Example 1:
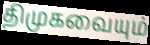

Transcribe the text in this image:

திமுகவையும்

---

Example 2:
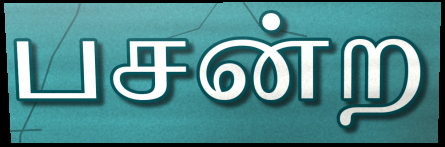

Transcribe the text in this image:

பசன்ற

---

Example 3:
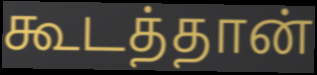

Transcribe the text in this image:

கூடத்தான்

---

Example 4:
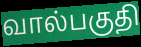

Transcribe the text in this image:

வால்பகுதி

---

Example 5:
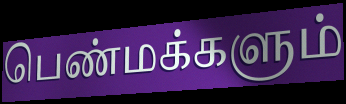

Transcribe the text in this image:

பெண்மக்களும்